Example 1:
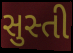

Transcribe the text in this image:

સુસ્તી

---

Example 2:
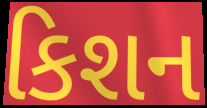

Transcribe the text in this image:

કિશન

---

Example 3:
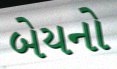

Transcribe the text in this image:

બેયનો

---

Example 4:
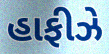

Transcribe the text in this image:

હાફીઝે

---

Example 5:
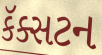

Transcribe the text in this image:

કૅક્સટન